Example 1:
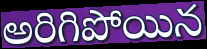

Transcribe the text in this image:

అరిగిపోయిన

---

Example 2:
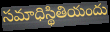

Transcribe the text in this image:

సమాధిస్థితియందు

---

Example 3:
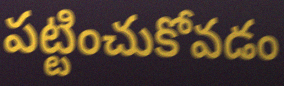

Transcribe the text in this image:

పట్టించుకోవడం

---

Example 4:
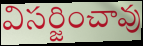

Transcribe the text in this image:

విసర్జించావు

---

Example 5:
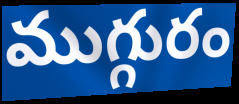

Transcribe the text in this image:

ముగ్గురం